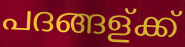
പദങ്ങള്ക്ക്